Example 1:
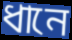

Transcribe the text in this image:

ধানে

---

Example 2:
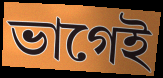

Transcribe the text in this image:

ভাগেই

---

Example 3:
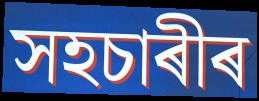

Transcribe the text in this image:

সহচাৰীৰ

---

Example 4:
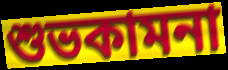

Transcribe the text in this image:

শুভকামনা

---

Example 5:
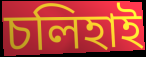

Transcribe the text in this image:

চলিহাই